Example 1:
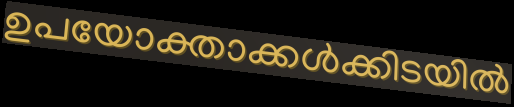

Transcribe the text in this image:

ഉപയോക്താക്കൾക്കിടയിൽ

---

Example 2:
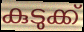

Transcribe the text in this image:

കുടുക്ക്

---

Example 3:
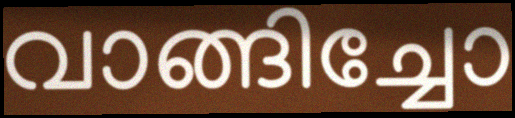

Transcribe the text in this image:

വാങ്ങിച്ചോ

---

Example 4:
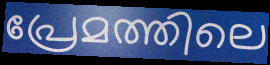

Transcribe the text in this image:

പ്രേമത്തിലെ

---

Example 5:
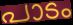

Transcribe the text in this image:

പാടം